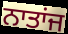
ਨਾਤਾਂਜ